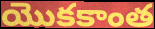
యొకకాంత